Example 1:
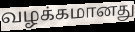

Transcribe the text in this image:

வழக்கமானது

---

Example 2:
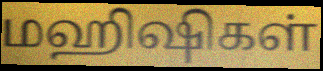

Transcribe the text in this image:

மஹிஷிகள்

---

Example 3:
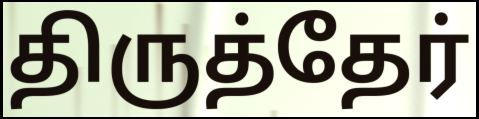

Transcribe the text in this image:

திருத்தேர்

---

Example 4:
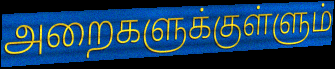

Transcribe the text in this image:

அறைகளுக்குள்ளும்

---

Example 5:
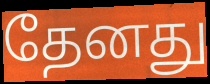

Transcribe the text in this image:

தேனது